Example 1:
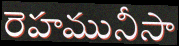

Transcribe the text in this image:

రెహమునీసా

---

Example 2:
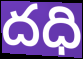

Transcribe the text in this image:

దధి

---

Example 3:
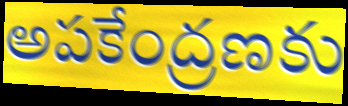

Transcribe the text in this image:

అపకేంద్రణకు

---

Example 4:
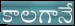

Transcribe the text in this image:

కాలగానే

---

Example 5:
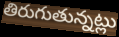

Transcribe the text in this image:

తిరుగుతున్నట్లు